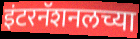
इंटरनॅशनलच्या